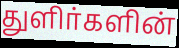
துளிர்களின்